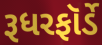
રૂધરફૉર્ડે